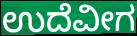
ಉದೆವೀಗ